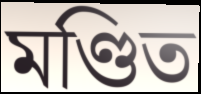
মণ্ডিত